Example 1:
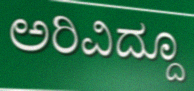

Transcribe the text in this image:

ಅರಿವಿದ್ದೂ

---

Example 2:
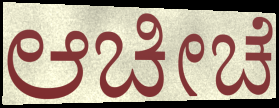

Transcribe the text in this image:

ಆಚೀಚೆ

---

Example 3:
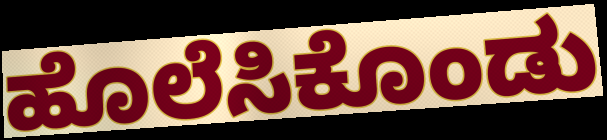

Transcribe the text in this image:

ಹೊಲೆಸಿಕೊಂಡು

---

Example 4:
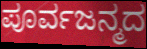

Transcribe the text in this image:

ಪೂರ್ವಜನ್ಮದ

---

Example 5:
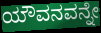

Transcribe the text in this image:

ಯೌವನವನ್ನೇ